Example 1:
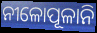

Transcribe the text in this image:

ନୀଳୋପୂଳାନି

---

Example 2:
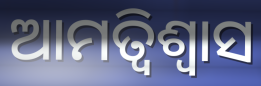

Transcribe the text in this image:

ଆମତ୍ବିଶ୍ୱାସ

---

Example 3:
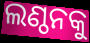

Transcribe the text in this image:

ଲଣ୍ଠନକୁ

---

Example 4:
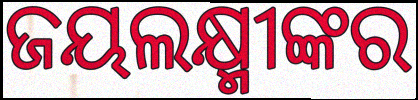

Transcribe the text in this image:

ଜୟଲକ୍ଷ୍ମୀଙ୍କର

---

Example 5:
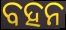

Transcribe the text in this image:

ବହନ